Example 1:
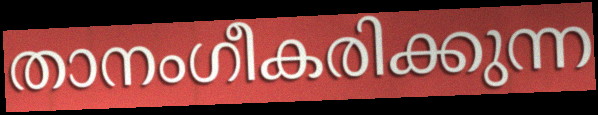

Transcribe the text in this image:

താനംഗീകരിക്കുന്ന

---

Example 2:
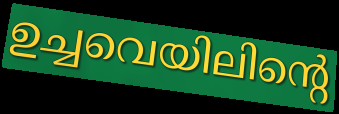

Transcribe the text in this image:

ഉച്ചവെയിലിന്റെ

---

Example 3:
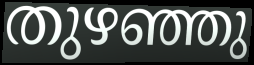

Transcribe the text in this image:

തുഴഞ്ഞു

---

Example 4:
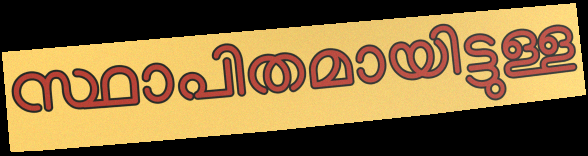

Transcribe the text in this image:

സ്ഥാപിതമായിട്ടുള്ള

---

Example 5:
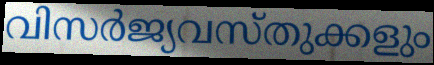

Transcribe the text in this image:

വിസർജ്യവസ്തുക്കളും